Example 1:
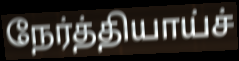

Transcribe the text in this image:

நேர்த்தியாய்ச்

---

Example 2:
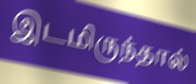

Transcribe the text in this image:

இடமிருந்தால்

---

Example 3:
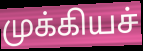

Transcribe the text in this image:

முக்கியச்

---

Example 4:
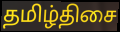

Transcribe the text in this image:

தமிழ்திசை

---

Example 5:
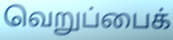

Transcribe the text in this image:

வெறுப்பைக்